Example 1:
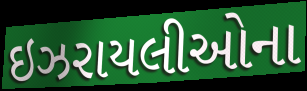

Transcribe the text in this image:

ઇઝરાયલીઓના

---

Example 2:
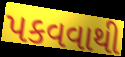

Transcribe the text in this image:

પકવવાથી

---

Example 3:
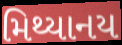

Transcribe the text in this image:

મિથ્યાનય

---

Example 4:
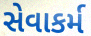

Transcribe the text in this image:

સેવાકર્મ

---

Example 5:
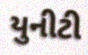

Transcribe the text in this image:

યુનીટી